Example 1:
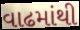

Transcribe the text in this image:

વાઢમાંથી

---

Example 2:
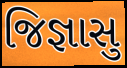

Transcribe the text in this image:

જિજ્ઞાસુ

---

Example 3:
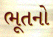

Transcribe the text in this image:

ભૂતનો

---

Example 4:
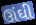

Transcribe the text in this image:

ઊંઘી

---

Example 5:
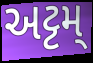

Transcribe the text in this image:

અટ્ટમ્